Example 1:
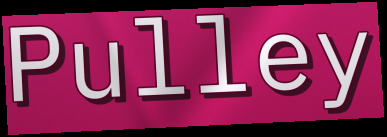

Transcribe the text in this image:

Pulley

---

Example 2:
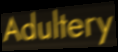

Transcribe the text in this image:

Adultery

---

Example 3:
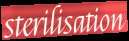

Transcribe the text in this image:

sterilisation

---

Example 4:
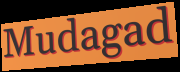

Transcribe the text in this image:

Mudagad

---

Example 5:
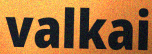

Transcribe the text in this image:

valkai